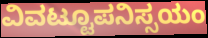
ವಿವಟ್ಟೂಪನಿಸ್ಸಯಂ